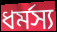
ধৰ্মস্য